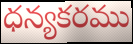
ధన్యకరము